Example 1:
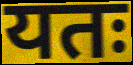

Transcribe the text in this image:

यतः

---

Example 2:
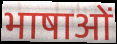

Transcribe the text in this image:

भाषाओें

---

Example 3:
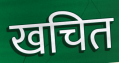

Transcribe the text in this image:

खचित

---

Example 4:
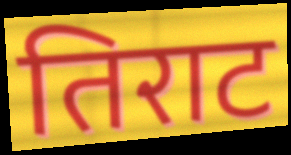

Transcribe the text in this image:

तिराट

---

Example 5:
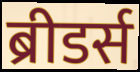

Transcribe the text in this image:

ब्रीडर्स